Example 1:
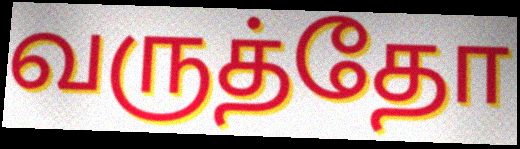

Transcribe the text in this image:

வருத்தோ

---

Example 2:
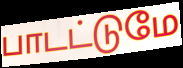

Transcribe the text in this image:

பாடட்டுமே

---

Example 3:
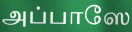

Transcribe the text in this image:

அப்பாஸே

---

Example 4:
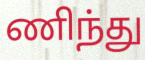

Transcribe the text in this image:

ணிந்து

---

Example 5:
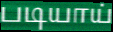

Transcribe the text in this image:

படியாய்